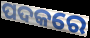
ପଦକରେ